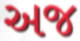
અજ